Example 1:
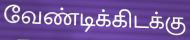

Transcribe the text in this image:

வேண்டிக்கிடக்கு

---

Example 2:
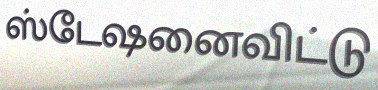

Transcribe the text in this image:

ஸ்டேஷனைவிட்டு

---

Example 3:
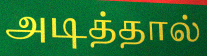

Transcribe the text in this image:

அடித்தால்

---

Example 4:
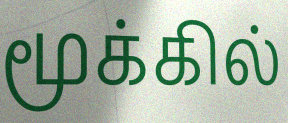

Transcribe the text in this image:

மூக்கில்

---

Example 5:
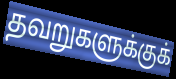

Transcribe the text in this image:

தவறுகளுக்குக்